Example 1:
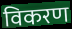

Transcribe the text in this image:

विकरण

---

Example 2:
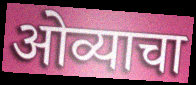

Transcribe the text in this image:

ओव्याचा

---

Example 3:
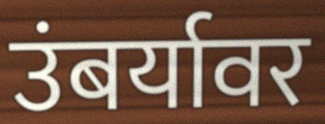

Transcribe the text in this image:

उंबर्यावर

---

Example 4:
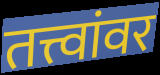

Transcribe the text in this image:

तत्त्वांवर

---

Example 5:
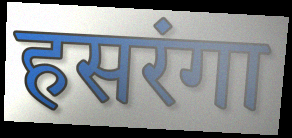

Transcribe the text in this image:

हसरंगा